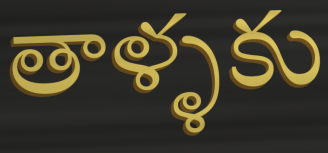
తాళ్ళకు